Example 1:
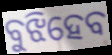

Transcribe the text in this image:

ବୁଝିହେବ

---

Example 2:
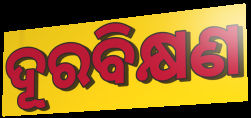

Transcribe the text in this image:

ଦୂରବିକ୍ଷଣ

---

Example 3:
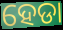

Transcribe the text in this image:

ହେଡା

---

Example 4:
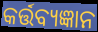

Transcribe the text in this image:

କର୍ତ୍ତବ୍ୟଜ୍ଞାନ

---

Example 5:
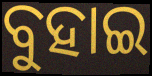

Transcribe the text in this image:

ବୁହାଇ